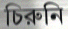
চিরুনি